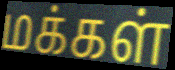
மக்கள்